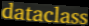
dataclass